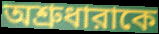
অশ্রুধারাকে